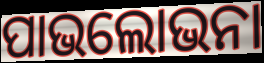
ପାଭଲୋଭନା